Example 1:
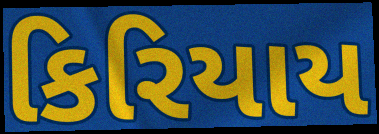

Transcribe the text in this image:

કિરિયાય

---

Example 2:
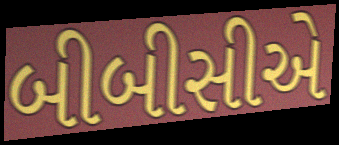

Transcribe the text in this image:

બીબીસીએ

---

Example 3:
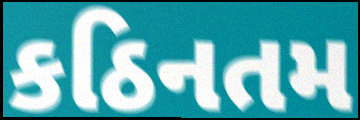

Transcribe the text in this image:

કઠિનતમ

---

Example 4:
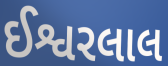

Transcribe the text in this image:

ઈશ્વરલાલ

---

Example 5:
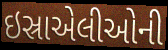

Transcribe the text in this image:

ઇસ્રાએલીઓની